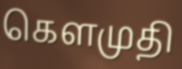
கௌமுதி